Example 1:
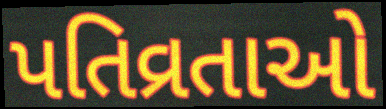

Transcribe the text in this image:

પતિવ્રતાઓ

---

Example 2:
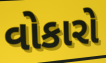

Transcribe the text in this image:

વોકારો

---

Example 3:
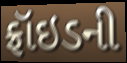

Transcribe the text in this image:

ફ્રૉઇડની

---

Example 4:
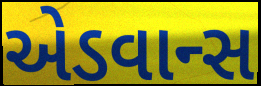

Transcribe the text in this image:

એડવાન્સ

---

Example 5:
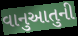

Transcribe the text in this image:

વાનુઆતુની